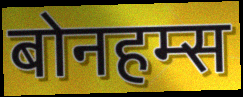
बोनहम्स